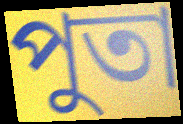
পুতা